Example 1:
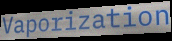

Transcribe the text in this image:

Vaporization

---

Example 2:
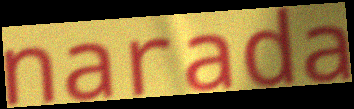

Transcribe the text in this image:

narada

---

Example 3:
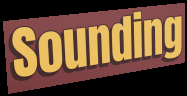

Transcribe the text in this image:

Sounding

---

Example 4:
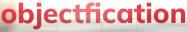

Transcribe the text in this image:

objectfication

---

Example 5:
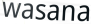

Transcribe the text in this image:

wasana